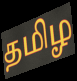
தமிழ